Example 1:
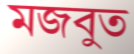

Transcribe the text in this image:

মজবুত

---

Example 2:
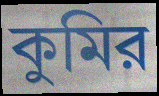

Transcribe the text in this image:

কুমির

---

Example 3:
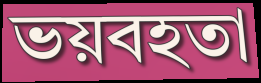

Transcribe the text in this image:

ভয়বহতা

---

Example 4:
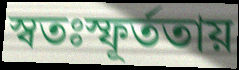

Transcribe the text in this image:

স্বতঃস্ফূর্ততায়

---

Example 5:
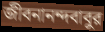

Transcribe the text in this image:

জীবনানন্দবাবুর